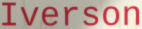
Iverson